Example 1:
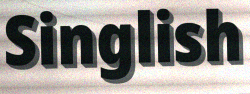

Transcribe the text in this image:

Singlish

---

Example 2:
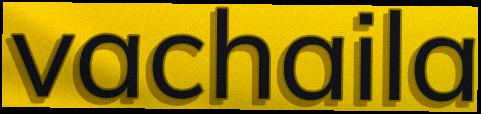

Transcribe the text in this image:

vachaila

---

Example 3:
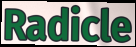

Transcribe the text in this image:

Radicle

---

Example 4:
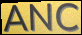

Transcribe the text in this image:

ANC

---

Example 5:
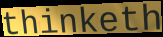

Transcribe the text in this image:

thinketh